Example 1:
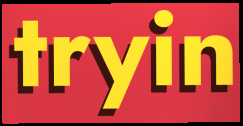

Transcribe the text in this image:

tryin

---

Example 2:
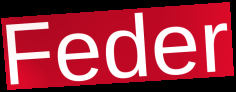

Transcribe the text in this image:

Feder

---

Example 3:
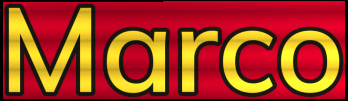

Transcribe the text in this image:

Marco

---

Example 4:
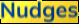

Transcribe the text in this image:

Nudges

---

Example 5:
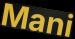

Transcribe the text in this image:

Mani